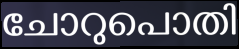
ചോറുപൊതി